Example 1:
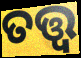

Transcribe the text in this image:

ତତ୍ତ୍ବ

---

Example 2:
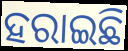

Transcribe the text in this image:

ହରାଇଛି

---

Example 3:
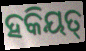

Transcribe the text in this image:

ହକିୟତ୍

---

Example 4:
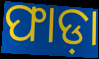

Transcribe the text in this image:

ଫାଡ଼ା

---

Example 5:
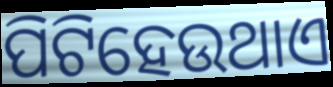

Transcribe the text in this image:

ପିଟିହେଉଥାଏ